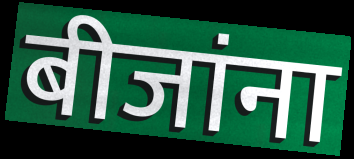
बीजांना